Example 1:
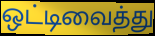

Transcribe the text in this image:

ஒட்டிவைத்து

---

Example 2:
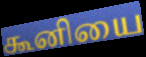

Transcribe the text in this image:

கூனியை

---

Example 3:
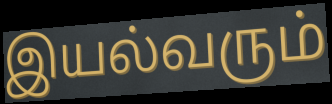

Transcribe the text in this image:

இயல்வரும்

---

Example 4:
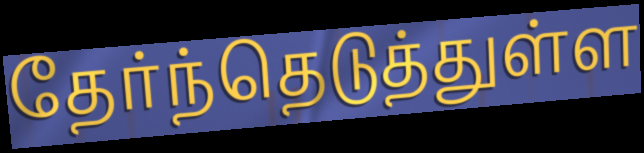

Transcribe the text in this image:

தேர்ந்தெடுத்துள்ள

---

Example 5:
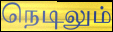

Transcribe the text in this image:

நெடிலும்